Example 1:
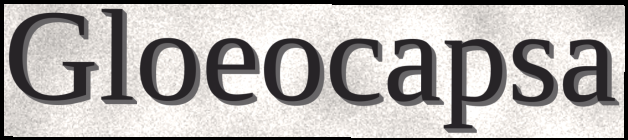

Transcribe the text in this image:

Gloeocapsa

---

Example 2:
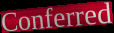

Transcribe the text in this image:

Conferred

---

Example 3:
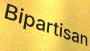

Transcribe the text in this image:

Bipartisan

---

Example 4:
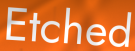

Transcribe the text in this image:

Etched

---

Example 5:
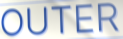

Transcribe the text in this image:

OUTER